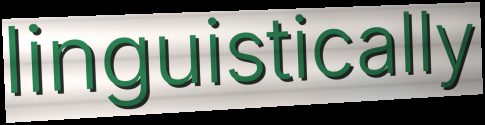
linguistically